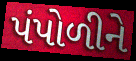
પંપોળીને